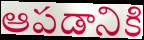
ఆపడానికి